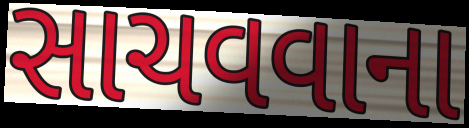
સાચવવાના